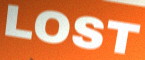
LOST